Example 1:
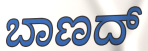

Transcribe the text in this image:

ಬಾಣದ್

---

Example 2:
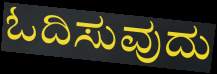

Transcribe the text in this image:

ಓದಿಸುವುದು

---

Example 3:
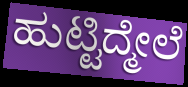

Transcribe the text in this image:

ಹುಟ್ಟಿದ್ಮೇಲೆ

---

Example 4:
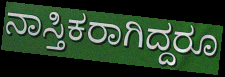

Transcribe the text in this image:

ನಾಸ್ತಿಕರಾಗಿದ್ದರೂ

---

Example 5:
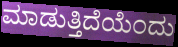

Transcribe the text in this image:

ಮಾಡುತ್ತಿದೆಯೆಂದು